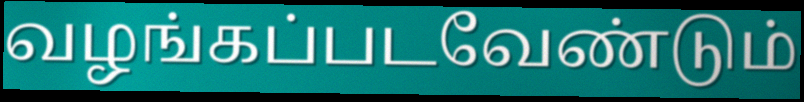
வழங்கப்படவேண்டும்